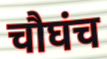
चौघंच